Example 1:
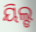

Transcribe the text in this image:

ୟିଲ୍ଡ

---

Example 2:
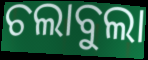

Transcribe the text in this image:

ଚଲାବୁଲା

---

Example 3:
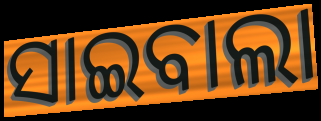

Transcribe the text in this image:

ସାଇବାଲା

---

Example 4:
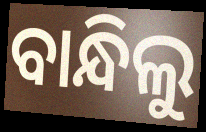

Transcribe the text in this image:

ବାନ୍ଧିଲୁ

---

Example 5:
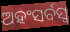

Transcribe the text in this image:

ଅହଂସର୍ବସ୍ୱ